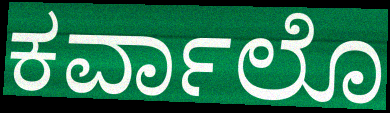
ಕರ್ವಾಲೊ